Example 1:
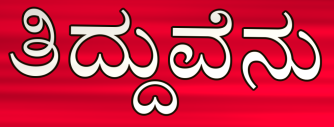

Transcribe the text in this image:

ತಿದ್ದುವೆನು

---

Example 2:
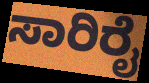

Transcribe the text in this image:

ಸಾರಿರೈ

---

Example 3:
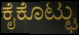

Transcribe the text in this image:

ಕೈಕೊಟ್ಟು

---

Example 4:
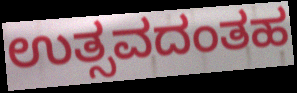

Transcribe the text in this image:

ಉತ್ಸವದಂತಹ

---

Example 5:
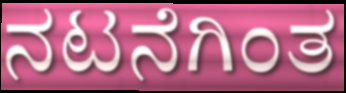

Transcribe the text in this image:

ನಟನೆಗಿಂತ